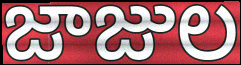
జాజుల